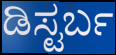
ಡಿಸ್ಟರ್ಬ